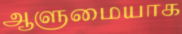
ஆளுமையாக